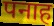
पनाह